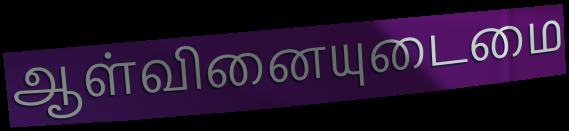
ஆள்வினையுடைமை